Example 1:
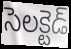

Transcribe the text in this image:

సెలక్టెడ్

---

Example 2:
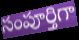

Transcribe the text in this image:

సంపూర్తిగా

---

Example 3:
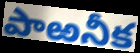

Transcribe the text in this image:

పాఱనీక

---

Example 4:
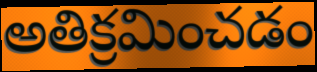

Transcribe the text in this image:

అతిక్రమించడం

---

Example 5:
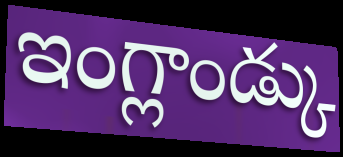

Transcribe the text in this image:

ఇంగ్లాండ్కు